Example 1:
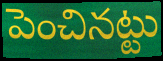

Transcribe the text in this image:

పెంచినట్టు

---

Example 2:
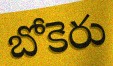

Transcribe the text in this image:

బోకెరు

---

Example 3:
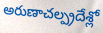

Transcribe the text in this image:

అరుణాచల్ప్రదేశ్లో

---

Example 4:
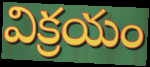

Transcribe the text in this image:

విక్రయం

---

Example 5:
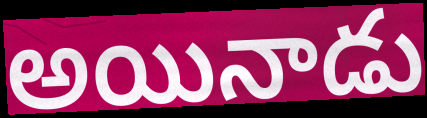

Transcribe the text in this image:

అయినాడు